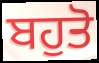
ਬਹੁਤੋ